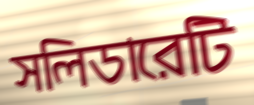
সলিডারেটি